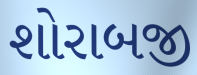
શોરાબજી